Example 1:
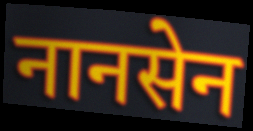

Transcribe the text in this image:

नानसेन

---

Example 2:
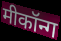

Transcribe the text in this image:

मीकॉन्ग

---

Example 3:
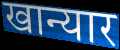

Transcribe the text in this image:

खान्यार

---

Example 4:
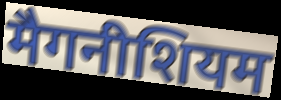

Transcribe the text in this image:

मैगनीशियम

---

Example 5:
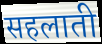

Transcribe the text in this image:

सहलाती